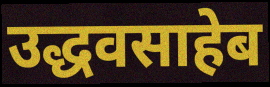
उद्धवसाहेब